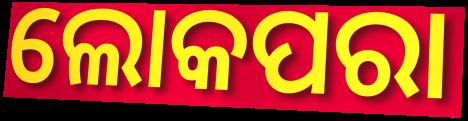
ଲୋକପରା